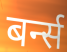
बर्न्स